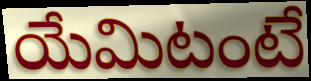
యేమిటంటే